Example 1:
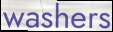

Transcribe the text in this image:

washers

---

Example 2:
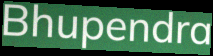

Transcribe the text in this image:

Bhupendra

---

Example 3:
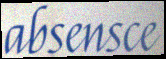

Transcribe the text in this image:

absensce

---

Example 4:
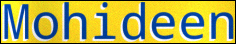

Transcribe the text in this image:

Mohideen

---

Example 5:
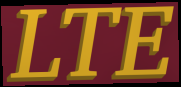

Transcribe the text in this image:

LTE